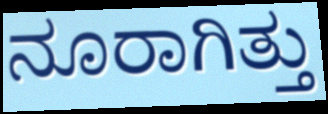
ನೂರಾಗಿತ್ತು